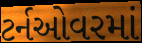
ટર્નઓવરમાં